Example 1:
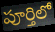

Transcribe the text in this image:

పూర్తిలో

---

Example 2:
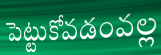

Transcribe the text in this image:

పెట్టుకోవడంవల్ల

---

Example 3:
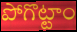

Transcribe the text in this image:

పోగొట్టాం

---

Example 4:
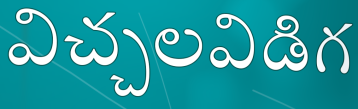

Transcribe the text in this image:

విచ్చలవిడిగ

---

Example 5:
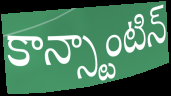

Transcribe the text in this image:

కాన్స్టాంటిన్